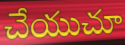
చేయుచూ